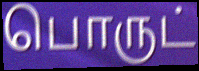
பொருட்